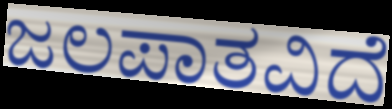
ಜಲಪಾತವಿದೆ